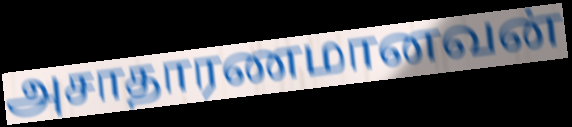
அசாதாரணமானவன்